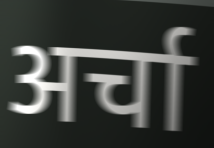
अर्चा